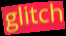
glitch